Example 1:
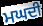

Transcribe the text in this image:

ਮਘਦੀ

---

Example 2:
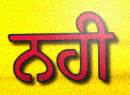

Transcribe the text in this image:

ਨਹੀ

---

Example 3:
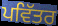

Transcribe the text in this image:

ਪਵਿੱਤਰ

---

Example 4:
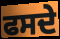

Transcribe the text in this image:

ਫਸਦੇ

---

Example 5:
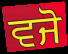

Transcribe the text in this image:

ਵਜੋ